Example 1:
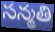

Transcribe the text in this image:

సన్మతి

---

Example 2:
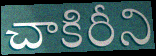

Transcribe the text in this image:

చాకిరీని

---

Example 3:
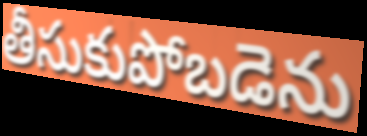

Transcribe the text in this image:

తీసుకుపోబడెను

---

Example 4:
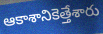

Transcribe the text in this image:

ఆకాశానికెత్తేశారు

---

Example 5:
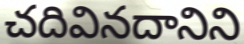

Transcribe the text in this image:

చదివినదానిని